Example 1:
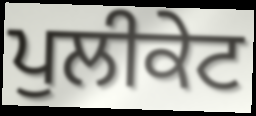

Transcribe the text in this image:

ਪੁਲੀਕੇਟ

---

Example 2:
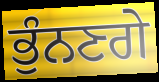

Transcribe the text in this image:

ਭੁੰਨਣਗੇ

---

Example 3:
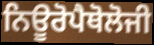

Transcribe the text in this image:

ਨਿਊਰੋਪੈਥੋਲੋਜੀ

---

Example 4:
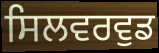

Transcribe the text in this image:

ਸਿਲਵਰਵੁਡ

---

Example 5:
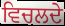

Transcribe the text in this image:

ਵਿਚਲਦੇ